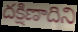
దక్షిణాదిని